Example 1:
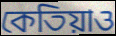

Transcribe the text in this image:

কেতিয়াও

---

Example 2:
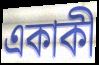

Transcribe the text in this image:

একাকী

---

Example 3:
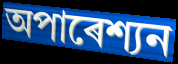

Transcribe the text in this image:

অপাৰেশ্যন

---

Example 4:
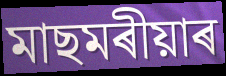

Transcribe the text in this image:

মাছমৰীয়াৰ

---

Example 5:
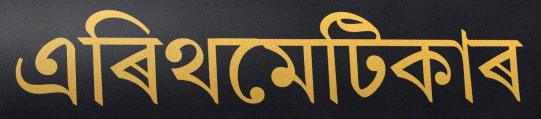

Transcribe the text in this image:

এৰিথমেটিকাৰ